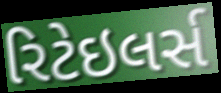
રિટેઇલર્સ